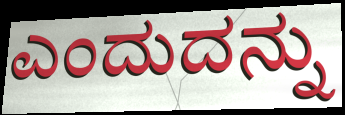
ಎಂದುದನ್ನು